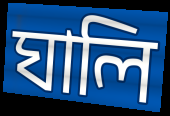
ঘালি